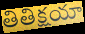
తితిక్షయా